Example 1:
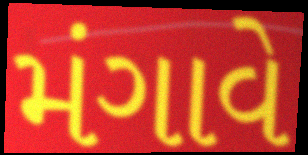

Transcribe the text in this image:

મંગાવે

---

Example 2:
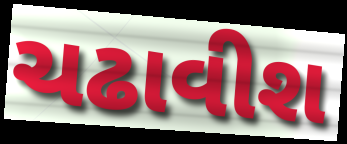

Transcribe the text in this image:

ચઢાવીશ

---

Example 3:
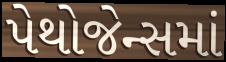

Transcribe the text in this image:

પેથોજેન્સમાં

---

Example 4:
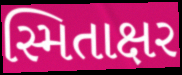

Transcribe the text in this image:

સ્મિતાક્ષર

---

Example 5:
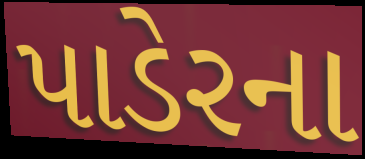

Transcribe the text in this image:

પાડેરના